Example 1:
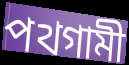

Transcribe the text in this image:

পথগামী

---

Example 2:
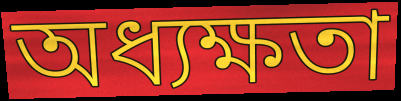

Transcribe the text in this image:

অধ্যক্ষতা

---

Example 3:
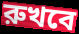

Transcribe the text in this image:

রুখবে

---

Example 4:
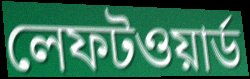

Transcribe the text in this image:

লেফটওয়ার্ড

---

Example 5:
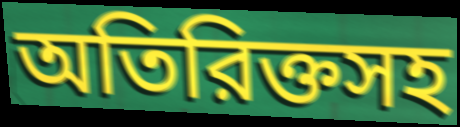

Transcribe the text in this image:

অতিরিক্তসহ